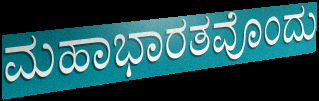
ಮಹಾಭಾರತವೊಂದು